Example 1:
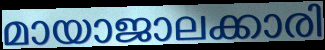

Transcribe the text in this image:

മായാജാലക്കാരി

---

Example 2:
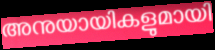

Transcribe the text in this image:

അനുയായികളുമായി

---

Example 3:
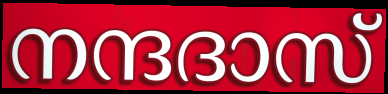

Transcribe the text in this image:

നന്ദദാസ്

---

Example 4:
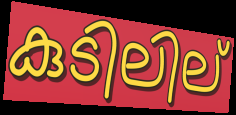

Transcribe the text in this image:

കുടിലില്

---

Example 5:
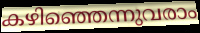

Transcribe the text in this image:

കഴിഞ്ഞെന്നുവരാം